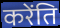
करेंति